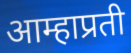
आम्हाप्रती